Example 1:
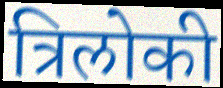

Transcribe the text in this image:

त्रिलोकी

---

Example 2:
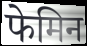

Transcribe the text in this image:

फेमिन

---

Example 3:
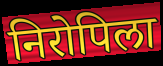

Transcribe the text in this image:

निरोपिला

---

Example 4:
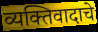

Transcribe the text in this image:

व्यक्तिवादाचे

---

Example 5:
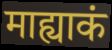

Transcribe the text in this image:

माह्याकं